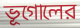
ভূগোলের